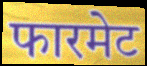
फारमेट